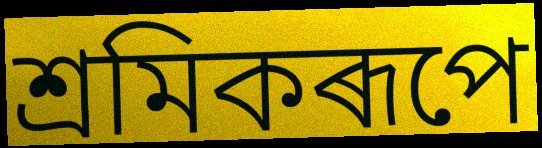
শ্ৰমিকৰূপে